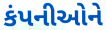
કંપનીઓને